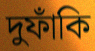
দুফাঁকি